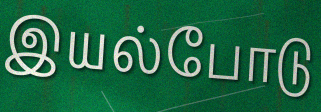
இயல்போடு